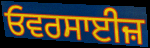
ਓਵਰਸਾਈਜ਼